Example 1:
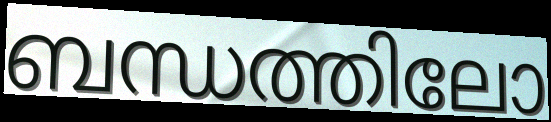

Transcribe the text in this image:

ബന്ധത്തിലോ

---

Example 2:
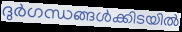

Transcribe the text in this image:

ദുർഗന്ധങ്ങൾക്കിടയിൽ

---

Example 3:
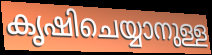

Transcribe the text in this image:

കൃഷിചെയ്യാനുള്ള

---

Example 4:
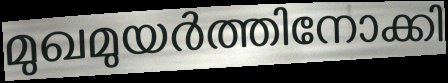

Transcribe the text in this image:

മുഖമുയർത്തിനോക്കി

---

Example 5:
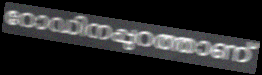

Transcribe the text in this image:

റോഡിനപ്പുറത്താണ്